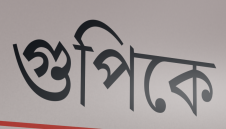
গুপিকে